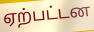
ஏற்பட்டன